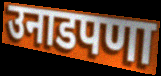
उनाडपणा